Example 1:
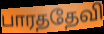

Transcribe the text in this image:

பாரததேவி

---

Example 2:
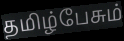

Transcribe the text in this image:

தமிழ்பேசும்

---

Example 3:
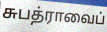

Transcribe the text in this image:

சுபத்ராவைப்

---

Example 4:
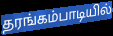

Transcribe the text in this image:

தரங்கம்பாடியில்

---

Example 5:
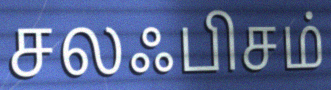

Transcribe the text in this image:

சலஃபிசம்